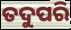
ତଦୁପରି